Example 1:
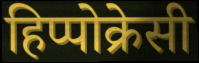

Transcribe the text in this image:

हिप्पोक्रेसी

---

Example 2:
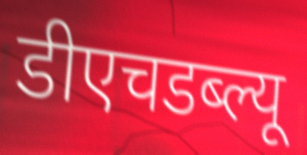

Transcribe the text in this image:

डीएचडब्ल्यू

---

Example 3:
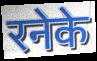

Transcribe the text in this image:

रनेके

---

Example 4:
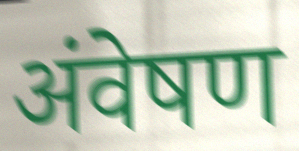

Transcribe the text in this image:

अंवेषण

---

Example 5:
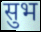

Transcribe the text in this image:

सुभ